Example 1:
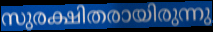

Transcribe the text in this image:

സുരക്ഷിതരായിരുന്നു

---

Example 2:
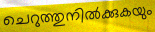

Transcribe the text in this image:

ചെറുത്തുനിൽക്കുകയും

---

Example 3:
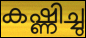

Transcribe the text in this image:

കഷ്ണിച്ചു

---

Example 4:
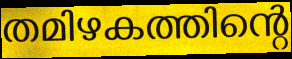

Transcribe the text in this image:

തമിഴകത്തിന്റെ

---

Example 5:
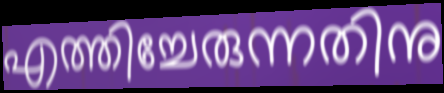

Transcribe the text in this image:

എത്തിച്ചേരുന്നതിനു